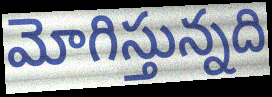
మోగిస్తున్నది